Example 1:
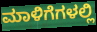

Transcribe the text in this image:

ಮಾಳಿಗೆಗಳಲ್ಲಿ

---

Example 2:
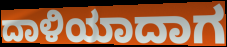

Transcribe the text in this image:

ದಾಳಿಯಾದಾಗ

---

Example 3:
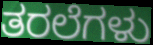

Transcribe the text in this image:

ತರಲೆಗಳು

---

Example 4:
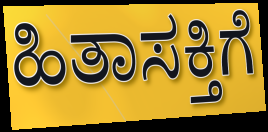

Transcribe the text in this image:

ಹಿತಾಸಕ್ತಿಗೆ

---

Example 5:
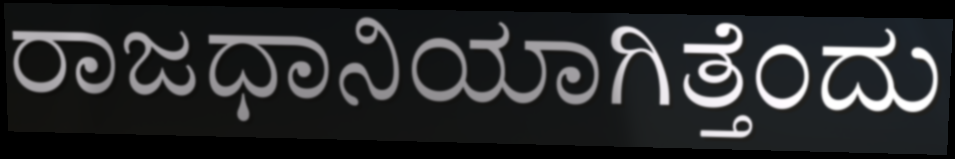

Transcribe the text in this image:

ರಾಜಧಾನಿಯಾಗಿತ್ತೆಂದು